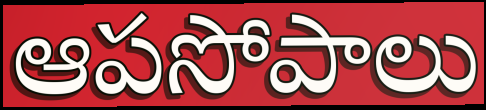
ఆపసోపాలు